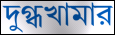
দুগ্ধখামার